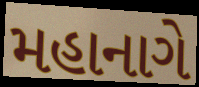
મહાનાગે